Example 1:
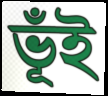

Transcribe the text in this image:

ভূঁই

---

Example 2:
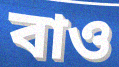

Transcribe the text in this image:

বাও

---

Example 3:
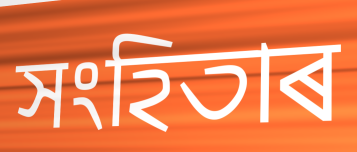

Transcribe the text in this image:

সংহিতাৰ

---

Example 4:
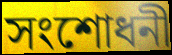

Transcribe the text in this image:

সংশোধনী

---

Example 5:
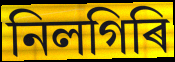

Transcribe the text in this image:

নিলগিৰি